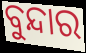
ବୁନ୍ଦାର